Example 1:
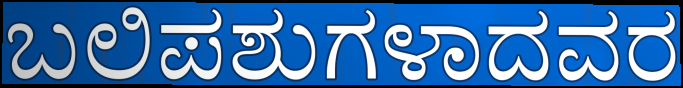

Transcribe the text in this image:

ಬಲಿಪಶುಗಳಾದವರ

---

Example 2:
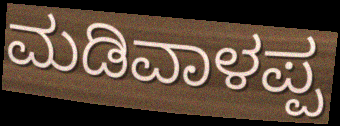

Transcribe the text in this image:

ಮಡಿವಾಳಪ್ಪ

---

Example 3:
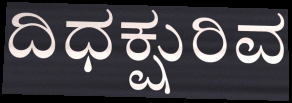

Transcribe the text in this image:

ದಿಧಕ್ಷುರಿವ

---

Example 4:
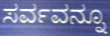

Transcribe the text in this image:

ಸರ್ವವನ್ನೂ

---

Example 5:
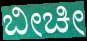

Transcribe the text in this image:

ಬೀಚೀ